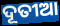
ଦୂତୀଆ